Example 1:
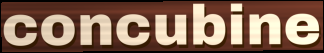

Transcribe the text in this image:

concubine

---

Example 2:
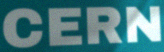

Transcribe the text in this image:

CERN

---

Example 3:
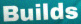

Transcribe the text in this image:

Builds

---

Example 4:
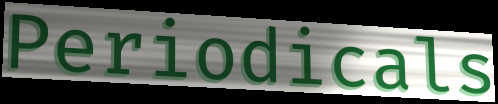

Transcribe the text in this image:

Periodicals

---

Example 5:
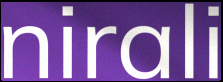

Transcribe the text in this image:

nirali